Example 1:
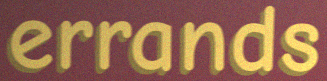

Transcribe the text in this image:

errands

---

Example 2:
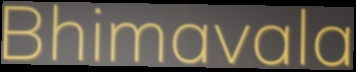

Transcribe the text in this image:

Bhimavala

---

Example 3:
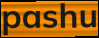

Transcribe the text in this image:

pashu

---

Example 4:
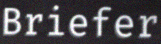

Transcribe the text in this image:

Briefer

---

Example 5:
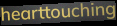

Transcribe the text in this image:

hearttouching